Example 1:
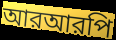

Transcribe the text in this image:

আরআরপি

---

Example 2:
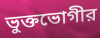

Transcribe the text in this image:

ভুক্তভোগীর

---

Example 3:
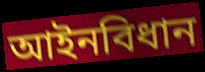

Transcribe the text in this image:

আইনবিধান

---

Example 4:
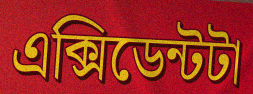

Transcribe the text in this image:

এক্সিডেন্টটা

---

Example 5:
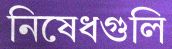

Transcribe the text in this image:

নিষেধগুলি